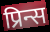
प्रिन्स